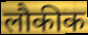
लौकीक